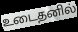
உடைதனில்